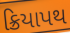
ક્રિયાપથ